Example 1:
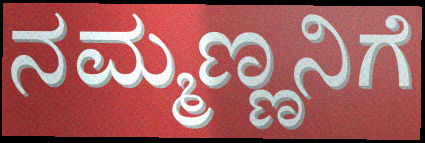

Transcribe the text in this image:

ನಮ್ಮಣ್ಣನಿಗೆ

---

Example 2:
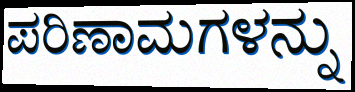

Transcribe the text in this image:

ಪರಿಣಾಮಗಳನ್ನು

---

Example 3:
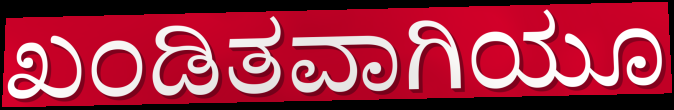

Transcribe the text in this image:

ಖಂಡಿತವಾಗಿಯೂ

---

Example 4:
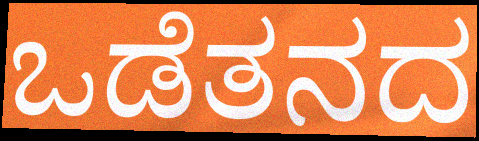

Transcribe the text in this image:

ಒಡೆತನದ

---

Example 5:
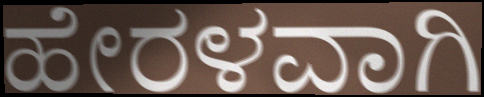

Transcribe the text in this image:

ಹೇರಳವಾಗಿ